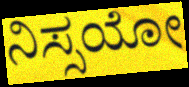
ನಿಸ್ಸಯೋ